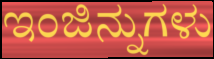
ಇಂಜಿನ್ನುಗಳು